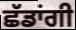
ਛੱਡਾਂਗੀ